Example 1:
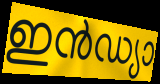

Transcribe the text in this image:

ഇൻഡ്യാ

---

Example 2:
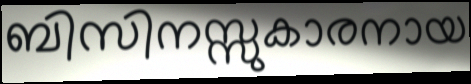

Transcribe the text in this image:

ബിസിനസ്സുകാരനായ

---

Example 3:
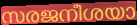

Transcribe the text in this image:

സരജനീശയാ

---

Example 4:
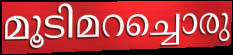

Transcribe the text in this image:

മൂടിമറച്ചൊരു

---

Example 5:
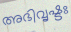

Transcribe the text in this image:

അഭിവൃഷ്ടഃ